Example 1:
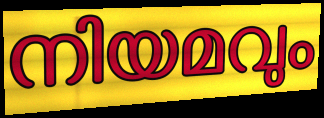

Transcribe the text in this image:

നിയമവും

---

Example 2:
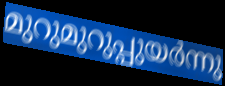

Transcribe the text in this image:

മുറുമുറുപ്പുയർന്നു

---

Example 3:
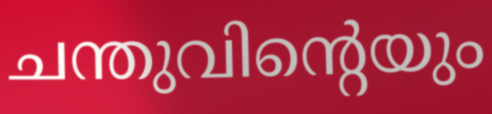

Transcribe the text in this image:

ചന്തുവിന്റെയും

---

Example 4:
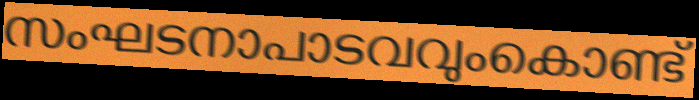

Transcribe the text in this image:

സംഘടനാപാടവവുംകൊണ്ട്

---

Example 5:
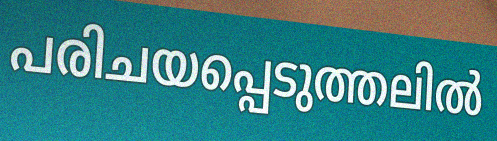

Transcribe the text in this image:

പരിചയപ്പെടുത്തലിൽ